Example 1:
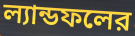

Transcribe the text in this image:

ল্যান্ডফলের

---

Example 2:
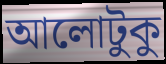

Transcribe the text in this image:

আলোটুকু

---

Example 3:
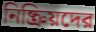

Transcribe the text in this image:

নিষ্ক্রিয়দের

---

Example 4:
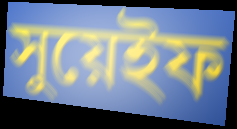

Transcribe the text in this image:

সুয়েইফ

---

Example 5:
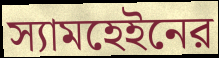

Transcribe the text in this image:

স্যামহেইনের